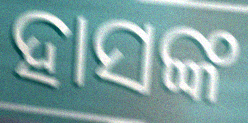
ହାସଙ୍କ